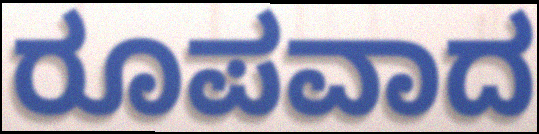
ರೂಪವಾದ